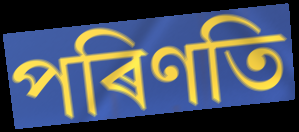
পৰিণতি